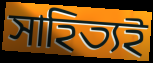
সাহিত্যই